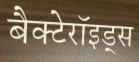
बैक्टेरॉइड्स